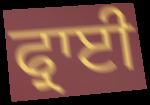
ਫ੍ਰਾਈ